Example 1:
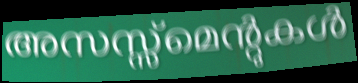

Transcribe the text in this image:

അസസ്സ്മെന്റുകൾ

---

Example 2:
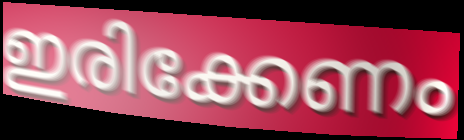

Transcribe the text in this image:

ഇരിക്കേണം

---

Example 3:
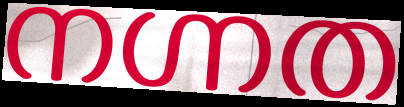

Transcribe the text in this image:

നഗ്നത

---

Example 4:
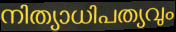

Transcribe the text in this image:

നിത്യാധിപത്യവും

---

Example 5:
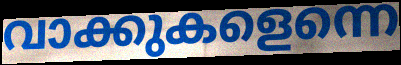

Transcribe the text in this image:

വാക്കുകളെന്നെ